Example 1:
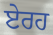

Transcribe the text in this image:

ਏਰਹ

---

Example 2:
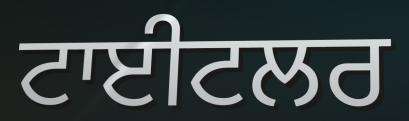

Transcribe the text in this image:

ਟਾਈਟਲਰ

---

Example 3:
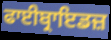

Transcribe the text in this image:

ਫਾਈਬ੍ਰਾਇਡਜ਼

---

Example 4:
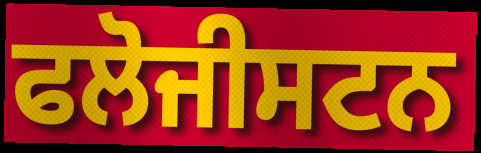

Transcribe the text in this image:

ਫਲੋਜੀਸਟਨ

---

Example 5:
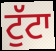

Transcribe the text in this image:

ਟੁੱਟਾ